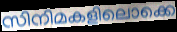
സിനിമകളിലൊക്കെ